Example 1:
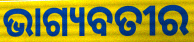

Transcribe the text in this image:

ଭାଗ୍ୟବତୀର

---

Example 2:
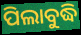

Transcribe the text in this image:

ପିଲାବୁଦ୍ଧି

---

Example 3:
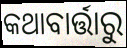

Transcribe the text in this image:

କଥାବାର୍ତ୍ତାରୁ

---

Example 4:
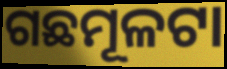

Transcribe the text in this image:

ଗଛମୂଳଟା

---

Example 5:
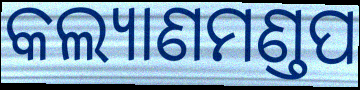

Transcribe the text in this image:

କଲ୍ୟାଣମଣ୍ଡପ